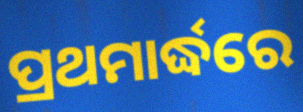
ପ୍ରଥମାର୍ଦ୍ଧରେ